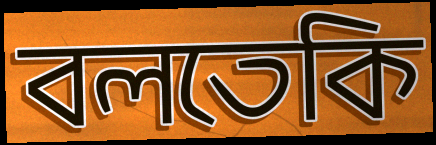
বলতেকি